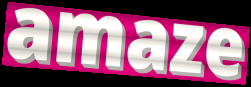
amaze